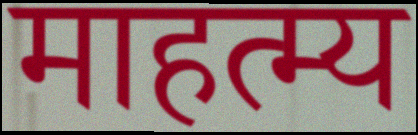
माहत्म्य